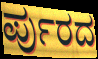
ರ್ಪುರದ